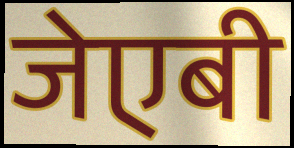
जेएबी